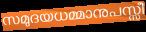
സമുദയധമ്മാനുപസ്സീ